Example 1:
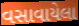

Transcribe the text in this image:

વસાવાયેલા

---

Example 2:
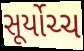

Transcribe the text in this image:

સૂર્યોચ્ચ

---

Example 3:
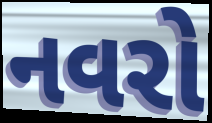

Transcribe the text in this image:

નવરો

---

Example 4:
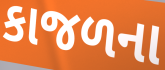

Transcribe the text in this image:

કાજળના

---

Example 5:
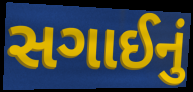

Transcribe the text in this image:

સગાઈનું